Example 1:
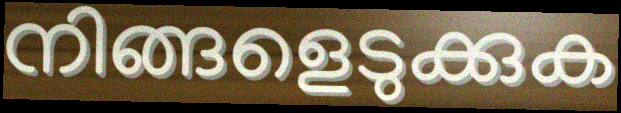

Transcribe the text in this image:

നിങ്ങളെടുക്കുക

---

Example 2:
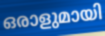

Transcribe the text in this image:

ഒരാളുമായി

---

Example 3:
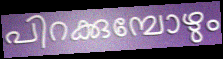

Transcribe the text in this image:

പിറക്കുമ്പോഴും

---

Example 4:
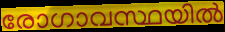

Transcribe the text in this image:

രോഗാവസ്ഥയിൽ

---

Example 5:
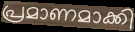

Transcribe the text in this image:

പ്രമാണമാക്കി